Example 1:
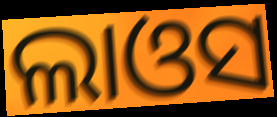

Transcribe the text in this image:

ଲାଓସ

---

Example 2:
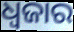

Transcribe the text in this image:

ଧ୍ୱଜାର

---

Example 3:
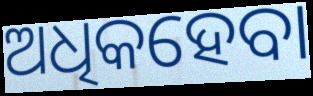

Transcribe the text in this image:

ଅଧିକହେବା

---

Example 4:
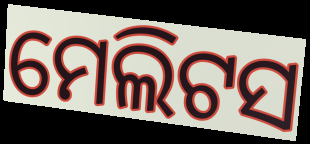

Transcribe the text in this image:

ମେଲିଟସ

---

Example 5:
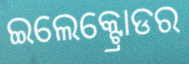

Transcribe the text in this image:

ଇଲେକ୍ଟ୍ରୋଡର